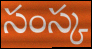
సంస్క